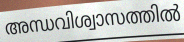
അന്ധവിശ്വാസത്തിൽ